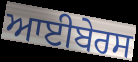
ਆਈਬੇਰਸ